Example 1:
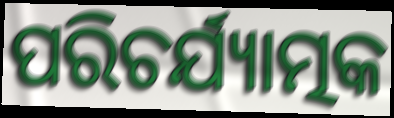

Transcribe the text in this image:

ପରିଚର୍ଯ୍ୟାତ୍ମକ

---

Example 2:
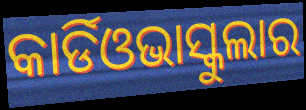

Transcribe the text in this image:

କାର୍ଡିଓଭାସ୍କୁଲାର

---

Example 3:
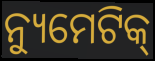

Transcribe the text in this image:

ନ୍ୟୁମେଟିକ୍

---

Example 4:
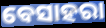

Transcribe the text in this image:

ବେସାହରା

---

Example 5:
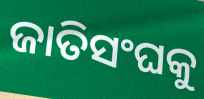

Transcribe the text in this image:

ଜାତିସଂଘକୁ